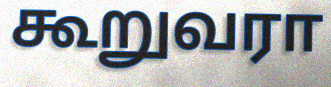
கூறுவரா